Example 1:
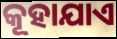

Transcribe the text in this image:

କୂହାଯାଏ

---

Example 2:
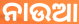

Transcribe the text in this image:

ନାଉଆ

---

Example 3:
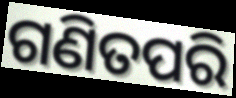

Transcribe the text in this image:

ଗଣିତପରି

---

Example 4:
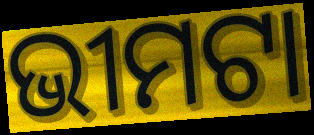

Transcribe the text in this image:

ଭୀମଟା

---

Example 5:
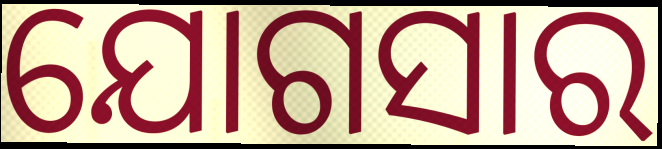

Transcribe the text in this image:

ଯୋଗସାର